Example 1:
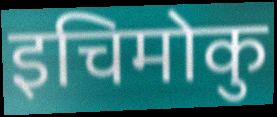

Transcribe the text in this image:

इचिमोकु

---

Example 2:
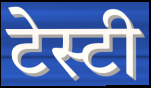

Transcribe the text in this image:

टेस्टी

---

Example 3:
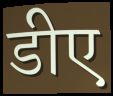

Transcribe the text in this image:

डीए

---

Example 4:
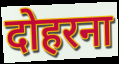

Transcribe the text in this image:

दोहरना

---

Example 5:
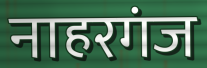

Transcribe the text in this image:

नाहरगंज